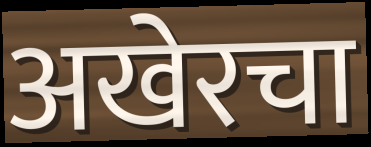
अखेरचा